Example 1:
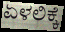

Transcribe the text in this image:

ಏಳಲಿಕ್ಕೆ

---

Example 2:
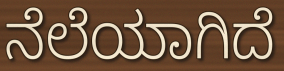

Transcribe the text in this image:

ನೆಲೆಯಾಗಿದೆ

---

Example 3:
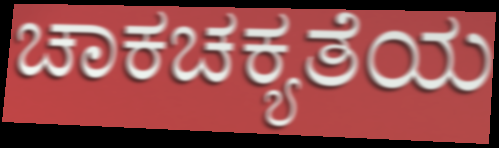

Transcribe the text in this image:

ಚಾಕಚಕ್ಯತೆಯ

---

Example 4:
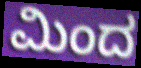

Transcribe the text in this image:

ಮಿಂದ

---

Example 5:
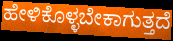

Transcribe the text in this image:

ಹೇಳಿಕೊಳ್ಳಬೇಕಾಗುತ್ತದೆ